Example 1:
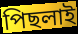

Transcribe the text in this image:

পিছলাই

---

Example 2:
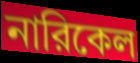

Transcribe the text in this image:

নারিকেল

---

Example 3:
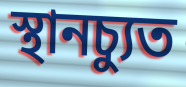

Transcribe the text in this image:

স্থানচ্যুত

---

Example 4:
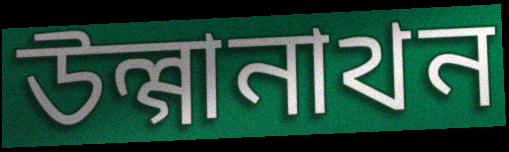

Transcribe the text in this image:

উল্গানাথন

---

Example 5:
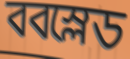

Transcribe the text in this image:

ববস্লেড